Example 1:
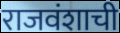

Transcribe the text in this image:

राजवंशाची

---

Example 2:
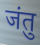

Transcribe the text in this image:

जंतु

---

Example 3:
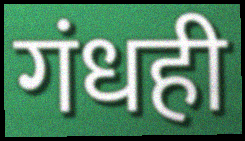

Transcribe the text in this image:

गंधही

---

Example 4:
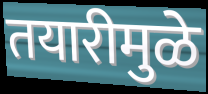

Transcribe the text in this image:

तयारीमुळे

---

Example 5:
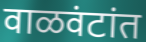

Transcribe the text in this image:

वाळवंटांत